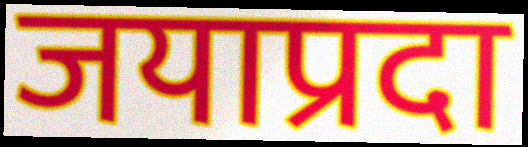
जयाप्रदा